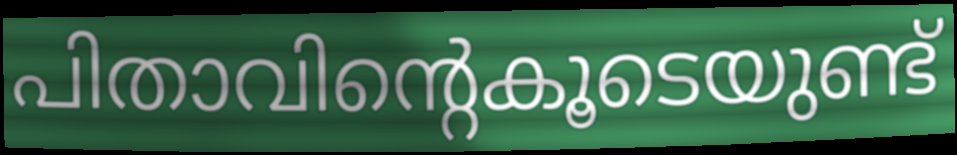
പിതാവിന്റെകൂടെയുണ്ട്